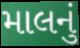
માલનું